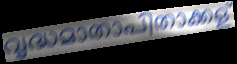
വൃദ്ധമാതാപിതാക്കള്